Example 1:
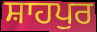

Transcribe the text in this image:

ਸ਼ਾਹਪੁਰ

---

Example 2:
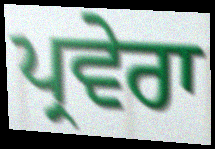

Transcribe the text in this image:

ਪ੍ਰਵੇਰਾ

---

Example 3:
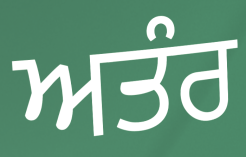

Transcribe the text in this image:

ਅਤੰਰ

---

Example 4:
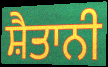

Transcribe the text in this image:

ਸ਼ੈਤਾਨੀ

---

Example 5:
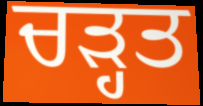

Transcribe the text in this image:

ਚੜ੍ਹਤ